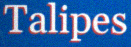
Talipes